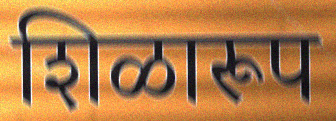
शिळारूप